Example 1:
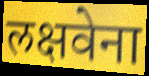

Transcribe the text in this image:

लक्षवेना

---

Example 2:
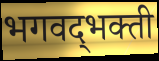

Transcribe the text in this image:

भगवद्‌भक्ती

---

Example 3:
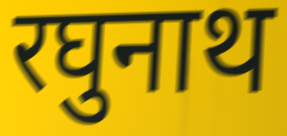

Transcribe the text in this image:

रघुनाथ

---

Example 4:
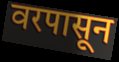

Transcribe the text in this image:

वरपासून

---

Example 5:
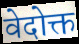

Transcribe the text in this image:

वेदोक्त